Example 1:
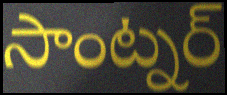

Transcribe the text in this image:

సాంట్నర్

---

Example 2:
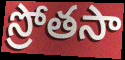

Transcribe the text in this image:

స్రోతసా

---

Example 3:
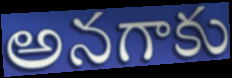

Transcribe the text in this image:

అనగాకు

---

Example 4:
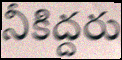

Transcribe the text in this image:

నీకిద్దరు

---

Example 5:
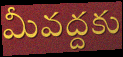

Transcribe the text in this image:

మీవద్దకు